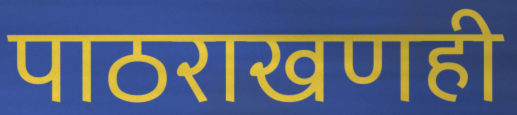
पाठराखणही